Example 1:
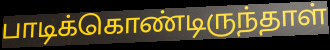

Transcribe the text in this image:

பாடிக்கொண்டிருந்தாள்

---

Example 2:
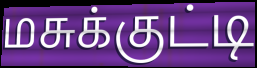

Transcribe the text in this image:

மசுக்குட்டி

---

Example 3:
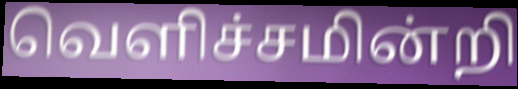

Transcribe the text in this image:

வெளிச்சமின்றி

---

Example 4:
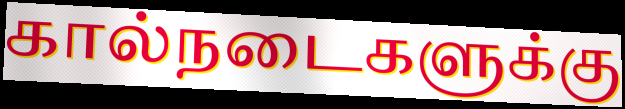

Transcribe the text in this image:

கால்நடைகளுக்கு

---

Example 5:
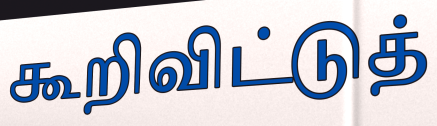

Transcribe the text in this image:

கூறிவிட்டுத்